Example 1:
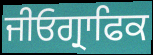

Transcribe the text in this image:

ਜੀਓਗ੍ਰਾਫਿਕ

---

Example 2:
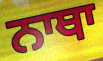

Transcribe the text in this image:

ਨਾਥਾ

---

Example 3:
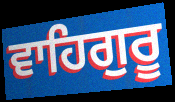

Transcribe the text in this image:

ਵਾਹਿਗੁਰੂ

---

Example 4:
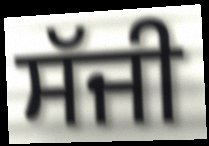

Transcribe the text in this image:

ਸੱਜੀ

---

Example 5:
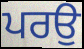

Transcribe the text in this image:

ਪਰਉ